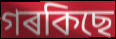
গৰকিছে